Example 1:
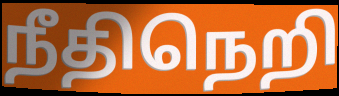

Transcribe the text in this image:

நீதிநெறி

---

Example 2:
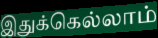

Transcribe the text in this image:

இதுக்கெல்லாம்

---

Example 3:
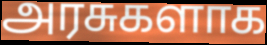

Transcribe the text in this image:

அரசுகளாக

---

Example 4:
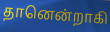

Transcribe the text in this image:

தானென்றாகி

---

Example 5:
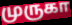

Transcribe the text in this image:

முருகா